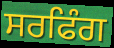
ਸਰਫਿੰਗ